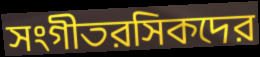
সংগীতরসিকদের